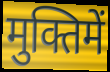
मुक्तिमें